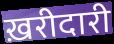
ख़रीदारी